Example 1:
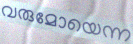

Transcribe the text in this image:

വരുമോയെന്ന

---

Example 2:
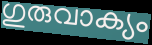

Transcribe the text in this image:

ഗുരുവാക്യം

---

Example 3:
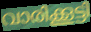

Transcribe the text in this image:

വാരിക്കൂട്ടി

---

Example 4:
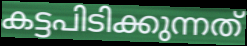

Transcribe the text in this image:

കട്ടപിടിക്കുന്നത്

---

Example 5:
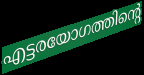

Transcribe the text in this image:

എട്ടരയോഗത്തിന്റെ